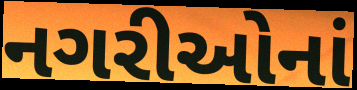
નગરીઓનાં